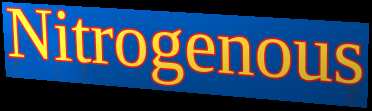
Nitrogenous